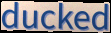
ducked